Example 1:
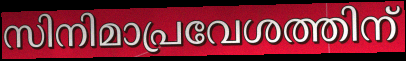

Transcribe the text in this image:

സിനിമാപ്രവേശത്തിന്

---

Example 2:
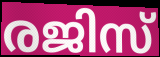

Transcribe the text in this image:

രജിസ്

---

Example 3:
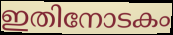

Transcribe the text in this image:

ഇതിനോടകം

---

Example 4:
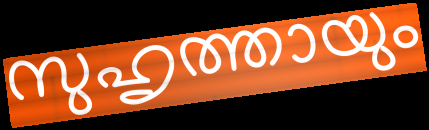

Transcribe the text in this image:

സുഹൃത്തായും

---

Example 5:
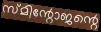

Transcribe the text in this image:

സ്മിന്റോജന്റെ